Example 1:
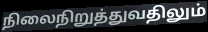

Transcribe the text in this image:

நிலைநிறுத்துவதிலும்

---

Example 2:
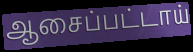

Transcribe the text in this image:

ஆசைப்பட்டாய்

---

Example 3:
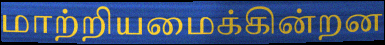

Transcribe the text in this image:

மாற்றியமைக்கின்றன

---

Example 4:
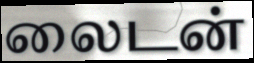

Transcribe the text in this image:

லைடன்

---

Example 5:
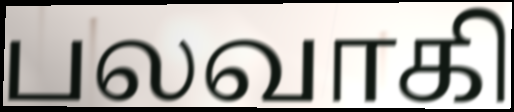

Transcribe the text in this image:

பலவாகி